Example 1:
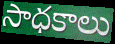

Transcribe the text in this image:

సాధకాలు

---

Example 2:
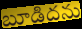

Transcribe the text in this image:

బూడిదను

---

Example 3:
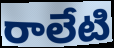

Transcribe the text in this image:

రాలేటి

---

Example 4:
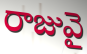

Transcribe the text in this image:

రాజువై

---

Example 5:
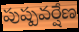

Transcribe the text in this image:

పుష్పవర్షేణ